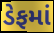
ડેફમાં